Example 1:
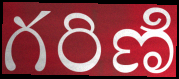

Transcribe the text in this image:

గరిణి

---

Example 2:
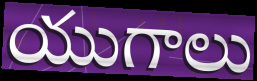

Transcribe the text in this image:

యుగాలు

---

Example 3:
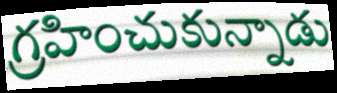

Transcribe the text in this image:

గ్రహించుకున్నాడు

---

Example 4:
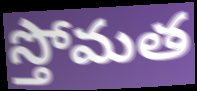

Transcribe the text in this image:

స్తోమత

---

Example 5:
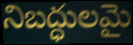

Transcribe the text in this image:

నిబద్ధులమై